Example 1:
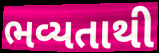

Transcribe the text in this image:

ભવ્યતાથી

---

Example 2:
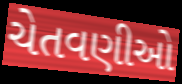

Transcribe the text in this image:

ચેતવણીઓ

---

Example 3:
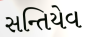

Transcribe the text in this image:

સન્તિયેવ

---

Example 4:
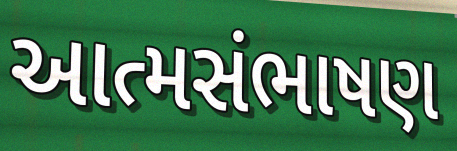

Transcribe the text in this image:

આત્મસંભાષણ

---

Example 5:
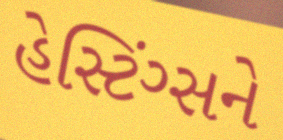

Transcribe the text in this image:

હેસ્ટિંગ્સને